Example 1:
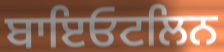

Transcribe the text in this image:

ਬਾਇਓਟਲਿਨ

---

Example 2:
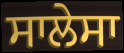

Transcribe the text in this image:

ਸਾਲੇਸਾ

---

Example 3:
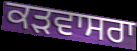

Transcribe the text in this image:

ਕੜਵਾਸਰਾ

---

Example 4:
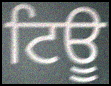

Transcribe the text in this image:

ਟਿਊ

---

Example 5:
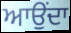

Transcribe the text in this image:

ਆਉੰਦਾ